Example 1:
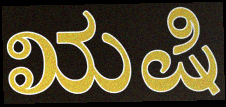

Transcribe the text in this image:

ಋಷಿ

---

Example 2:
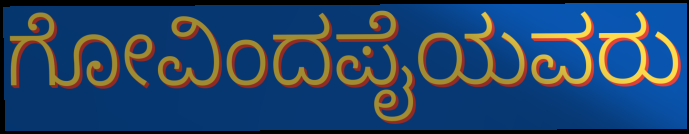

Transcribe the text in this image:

ಗೋವಿಂದಪೈಯವರು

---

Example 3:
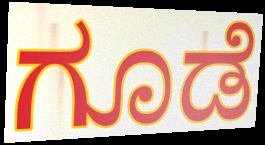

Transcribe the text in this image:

ಗೂಡೆ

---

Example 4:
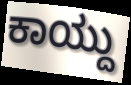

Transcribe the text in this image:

ಕಾಯ್ದು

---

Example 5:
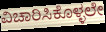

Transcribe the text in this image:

ವಿಚಾರಿಸಿಕೊಳ್ಳಲೇ